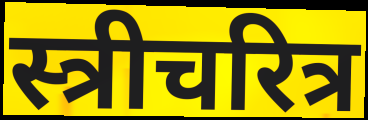
स्त्रीचरित्र